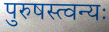
पुरुषस्त्वन्यः